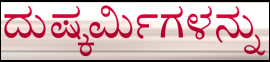
ದುಷ್ಕರ್ಮಿಗಳನ್ನು